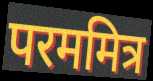
परममित्र